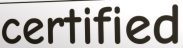
certified